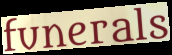
funerals